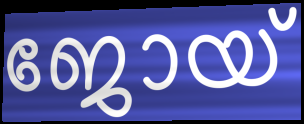
ജോയ്